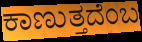
ಕಾಣುತ್ತದೆಂಬ